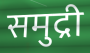
समुद्री